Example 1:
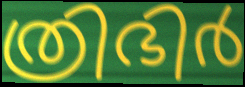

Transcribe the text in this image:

ത്രിഭിർ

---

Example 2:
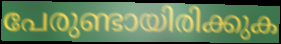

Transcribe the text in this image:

പേരുണ്ടായിരിക്കുക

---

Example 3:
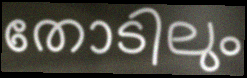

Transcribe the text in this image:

തോടിലും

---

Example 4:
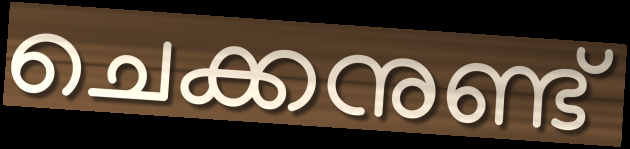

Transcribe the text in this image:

ചെക്കനുണ്ട്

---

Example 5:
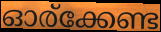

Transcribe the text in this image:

ഓര്ക്കേണ്ട